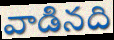
వాడినది